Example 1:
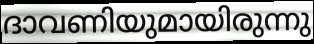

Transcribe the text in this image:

ദാവണിയുമായിരുന്നു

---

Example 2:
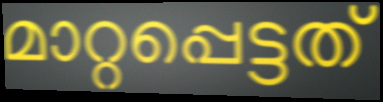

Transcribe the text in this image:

മാറ്റപ്പെട്ടത്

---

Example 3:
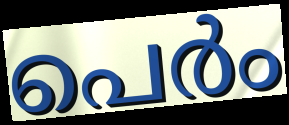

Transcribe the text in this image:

പെർം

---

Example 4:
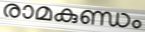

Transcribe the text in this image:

രാമകുണ്ഡം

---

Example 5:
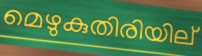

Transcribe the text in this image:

മെഴുകുതിരിയില്